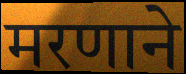
मरणाने